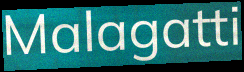
Malagatti